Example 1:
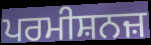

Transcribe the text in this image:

ਪਰਮੀਸ਼ਨਜ਼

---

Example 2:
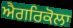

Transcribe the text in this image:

ਐਗਰਿਕੋਲਾ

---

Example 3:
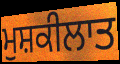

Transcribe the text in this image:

ਮੁਸ਼ਕੀਲਾਤ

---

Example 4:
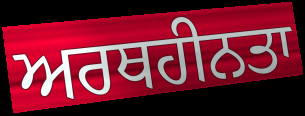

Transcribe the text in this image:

ਅਰਥਹੀਨਤਾ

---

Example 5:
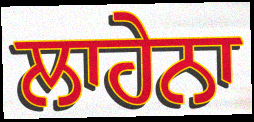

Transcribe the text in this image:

ਲਾਹੇਨਾ